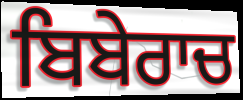
ਬਿਬੇਰਾਚ